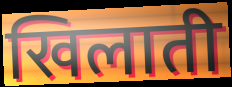
खिलाती